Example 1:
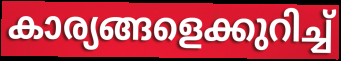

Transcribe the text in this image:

കാര്യങ്ങളെക്കുറിച്ച്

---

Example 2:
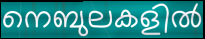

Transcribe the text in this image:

നെബുലകളിൽ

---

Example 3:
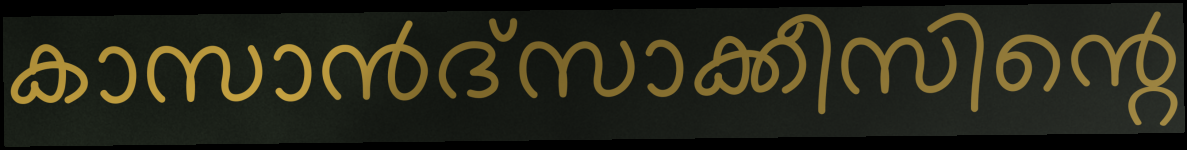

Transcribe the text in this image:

കാസാൻദ്സാക്കീസിന്റെ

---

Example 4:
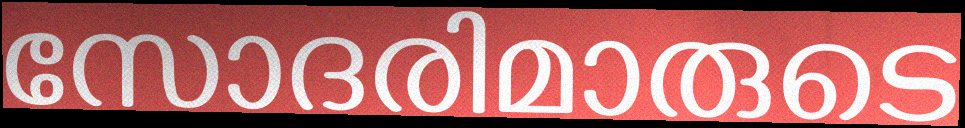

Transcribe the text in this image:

സോദരിമാരുടെ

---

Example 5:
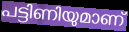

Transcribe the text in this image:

പട്ടിണിയുമാണ്